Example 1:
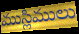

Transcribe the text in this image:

ముస్లిములు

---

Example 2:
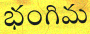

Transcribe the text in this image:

భంగిమ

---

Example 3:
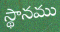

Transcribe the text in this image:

స్థానము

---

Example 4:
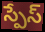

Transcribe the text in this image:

స్పేస్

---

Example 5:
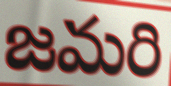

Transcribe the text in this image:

జమరి